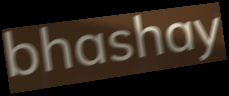
bhashay